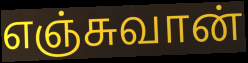
எஞ்சுவான்